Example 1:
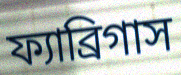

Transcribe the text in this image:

ফ্যাব্রিগাস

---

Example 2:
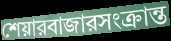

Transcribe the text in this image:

শেয়ারবাজারসংক্রান্ত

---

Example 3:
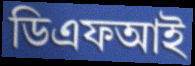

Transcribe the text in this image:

ডিএফআই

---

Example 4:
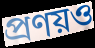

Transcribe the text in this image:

প্রণয়ও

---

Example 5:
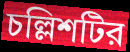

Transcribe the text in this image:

চল্লিশটির